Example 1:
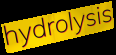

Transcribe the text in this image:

hydrolysis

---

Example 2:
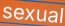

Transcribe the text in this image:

sexual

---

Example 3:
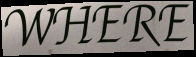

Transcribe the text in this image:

WHERE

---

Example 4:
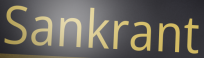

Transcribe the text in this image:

Sankrant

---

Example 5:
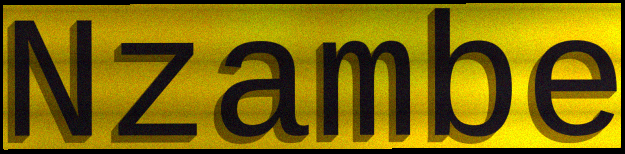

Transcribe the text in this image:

Nzambe